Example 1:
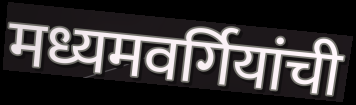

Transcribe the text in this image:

मध्यमवर्गियांची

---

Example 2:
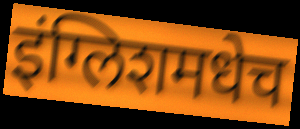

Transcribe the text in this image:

इंग्लिशमधेच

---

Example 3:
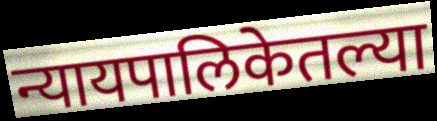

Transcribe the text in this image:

न्यायपालिकेतल्या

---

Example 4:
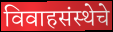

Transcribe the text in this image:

विवाहसंस्थेचे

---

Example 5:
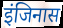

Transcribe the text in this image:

इंजिनास